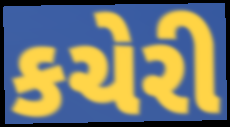
કચેરી